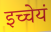
इच्चेयं